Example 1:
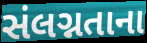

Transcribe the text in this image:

સંલગ્નતાના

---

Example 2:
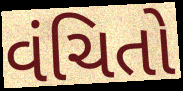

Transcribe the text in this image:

વંચિતો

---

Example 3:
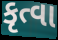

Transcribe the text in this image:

કૃત્વા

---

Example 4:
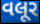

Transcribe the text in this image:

વલૂર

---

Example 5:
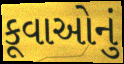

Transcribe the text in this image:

કૂવાઓનું